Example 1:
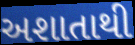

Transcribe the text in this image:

અશાતાથી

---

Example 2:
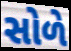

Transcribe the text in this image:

સોળે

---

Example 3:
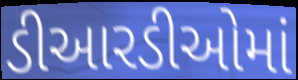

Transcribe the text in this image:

ડીઆરડીઓમાં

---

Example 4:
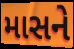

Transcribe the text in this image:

માસને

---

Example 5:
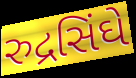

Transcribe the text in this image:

રુદ્રસિંઘે